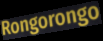
Rongorongo